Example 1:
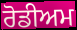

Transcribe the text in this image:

ਰੋਡੀਅਮ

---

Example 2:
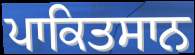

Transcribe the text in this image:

ਪਾਕਿਤਸਾਨ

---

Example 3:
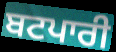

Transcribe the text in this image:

ਬਟਪਾਰੀ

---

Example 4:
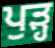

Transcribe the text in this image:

ਪੁੜ੍ਹ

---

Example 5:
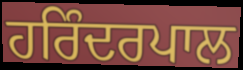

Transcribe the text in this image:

ਹਰਿੰਦਰਪਾਲ